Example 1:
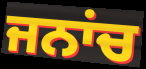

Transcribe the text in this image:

ਜਨਾਂਚ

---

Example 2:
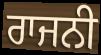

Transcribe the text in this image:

ਰਾਜਨੀ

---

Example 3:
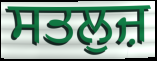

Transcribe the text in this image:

ਸਤਲੁਜ਼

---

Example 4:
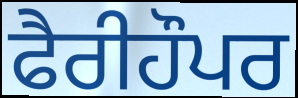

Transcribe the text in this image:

ਫੈਰੀਹੌਪਰ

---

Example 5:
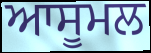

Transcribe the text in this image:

ਆਸੂਮਲ